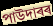
পাউদাৰৰ